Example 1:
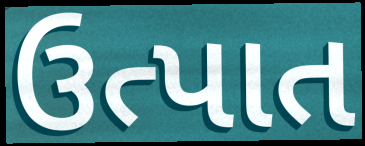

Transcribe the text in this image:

ઉત્પાત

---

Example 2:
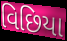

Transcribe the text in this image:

વિછિયા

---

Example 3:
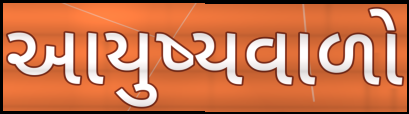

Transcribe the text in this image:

આયુષ્યવાળો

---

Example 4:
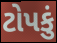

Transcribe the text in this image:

ટોપકું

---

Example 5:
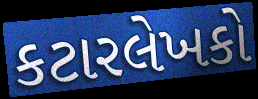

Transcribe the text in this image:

કટારલેખકો